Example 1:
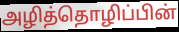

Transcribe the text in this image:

அழித்தொழிப்பின்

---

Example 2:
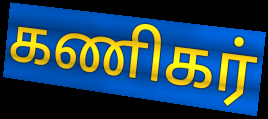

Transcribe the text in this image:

கணிகர்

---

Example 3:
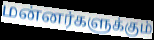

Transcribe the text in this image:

மன்னர்களுக்கும்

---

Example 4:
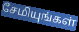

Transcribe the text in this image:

சேமியுங்கள்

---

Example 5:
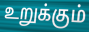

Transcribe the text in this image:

உறுக்கும்